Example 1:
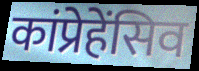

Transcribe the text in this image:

कांप्रेहेंसिव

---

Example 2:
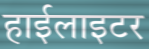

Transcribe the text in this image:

हाईलाइटर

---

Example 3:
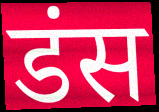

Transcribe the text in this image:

डंस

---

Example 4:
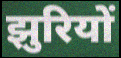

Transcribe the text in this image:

झुरियों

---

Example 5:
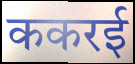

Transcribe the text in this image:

ककरई